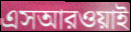
এসআরওয়াই